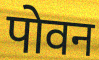
पोवन